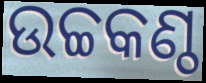
ଉଚ୍ଚକଣ୍ଠ